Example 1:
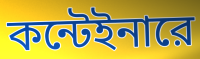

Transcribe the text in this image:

কন্টেইনারে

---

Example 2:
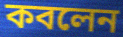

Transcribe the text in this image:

কবলেন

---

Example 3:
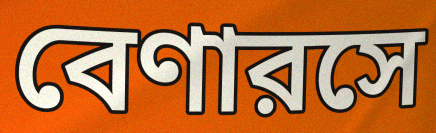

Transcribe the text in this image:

বেণারসে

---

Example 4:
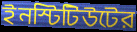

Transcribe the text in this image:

ইনস্টিটিউটের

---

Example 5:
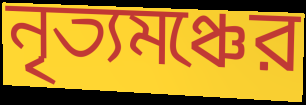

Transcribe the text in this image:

নৃত্যমঞ্চের